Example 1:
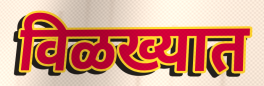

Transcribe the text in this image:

विळख्यात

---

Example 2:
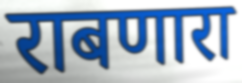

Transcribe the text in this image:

राबणारा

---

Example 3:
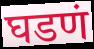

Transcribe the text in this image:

घडणं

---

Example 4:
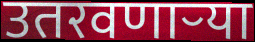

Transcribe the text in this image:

उतरवणाऱ्या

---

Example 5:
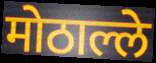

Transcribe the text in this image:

मोठाल्ले